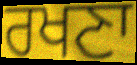
ਰਖਣਾ